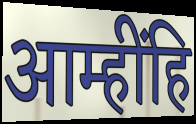
आम्हींहि